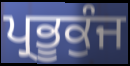
ਪ੍ਰਭੂਕੁੰਜ